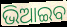
ଭିଆଇବ